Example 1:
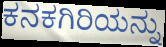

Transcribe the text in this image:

ಕನಕಗಿರಿಯನ್ನು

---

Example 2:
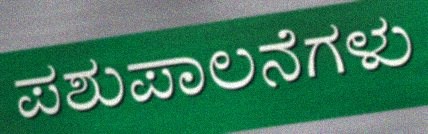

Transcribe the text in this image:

ಪಶುಪಾಲನೆಗಳು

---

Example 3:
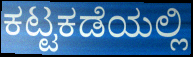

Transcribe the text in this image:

ಕಟ್ಟಕಡೆಯಲ್ಲಿ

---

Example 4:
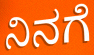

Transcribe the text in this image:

ನಿನಗೆ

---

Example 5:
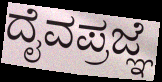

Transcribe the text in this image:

ದೈವಪ್ರಜ್ಞೆ